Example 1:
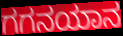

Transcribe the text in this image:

ಗಗನಯಾನ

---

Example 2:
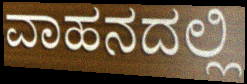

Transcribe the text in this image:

ವಾಹನದಲ್ಲಿ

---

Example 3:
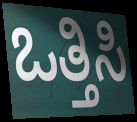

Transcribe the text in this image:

ಒತ್ತಿಸಿ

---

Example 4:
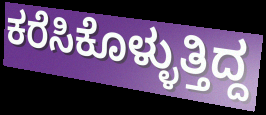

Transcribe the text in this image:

ಕರೆಸಿಕೊಳ್ಳುತ್ತಿದ್ದ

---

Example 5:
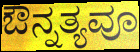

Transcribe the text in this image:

ಔನ್ನತ್ಯವೂ